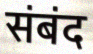
संबंद